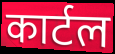
कार्टल